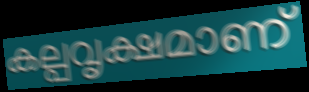
കല്പവൃക്ഷമാണ്